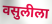
वसुलीला